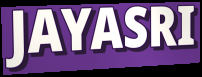
JAYASRI